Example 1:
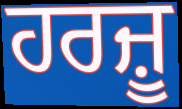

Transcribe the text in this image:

ਹਰਜ਼ੂ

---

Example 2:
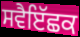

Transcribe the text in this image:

ਸਵੈਇੱਛਕ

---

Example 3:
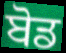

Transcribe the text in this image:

ਬੋਡ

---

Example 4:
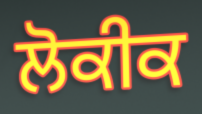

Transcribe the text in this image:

ਲੋਕੀਕ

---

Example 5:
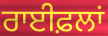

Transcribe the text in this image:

ਰਾਈਫ਼ਲਾਂ